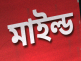
মাইল্ড